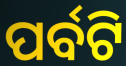
ପର୍ବଟି